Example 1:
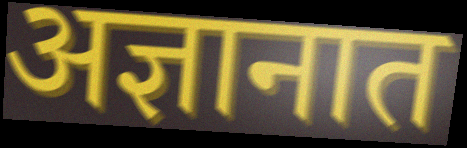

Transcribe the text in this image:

अज्ञानात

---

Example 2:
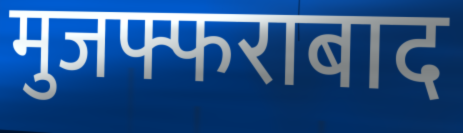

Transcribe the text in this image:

मुजफ्फराबाद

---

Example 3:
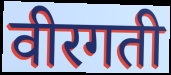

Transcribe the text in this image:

वीरगती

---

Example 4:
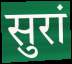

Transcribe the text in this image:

सुरां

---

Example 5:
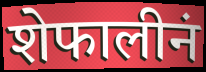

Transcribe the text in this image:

शेफालीनं